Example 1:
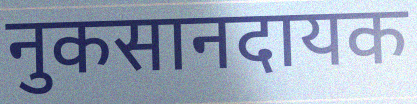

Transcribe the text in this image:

नुकसानदायक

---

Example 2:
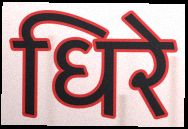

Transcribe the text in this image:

धिरे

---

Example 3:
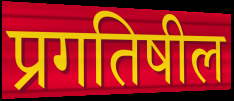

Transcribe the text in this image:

प्रगतिषील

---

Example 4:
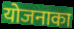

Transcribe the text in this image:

योजनाका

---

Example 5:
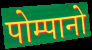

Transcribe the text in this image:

पोम्पानो